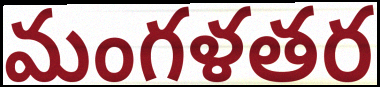
మంగళతర